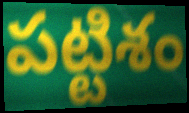
పట్టిశం